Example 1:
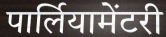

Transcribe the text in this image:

पार्लियामेंटरी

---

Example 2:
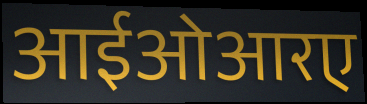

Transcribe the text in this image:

आईओआरए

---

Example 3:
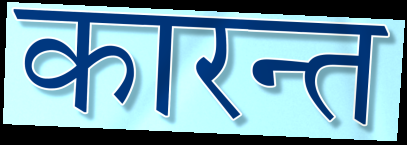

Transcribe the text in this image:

कारन्त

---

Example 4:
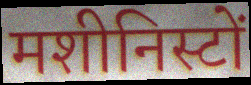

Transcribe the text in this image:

मशीनिस्टों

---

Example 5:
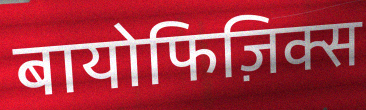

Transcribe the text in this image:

बायोफिज़िक्स